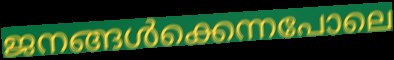
ജനങ്ങൾക്കെന്നപോലെ